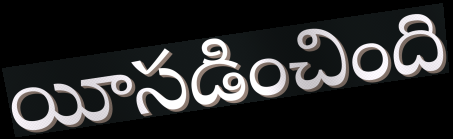
యీసడించింది